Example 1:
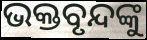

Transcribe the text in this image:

ଭକ୍ତବୃନ୍ଦଙ୍କୁ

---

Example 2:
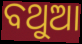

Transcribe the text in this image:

ବଥୁଆ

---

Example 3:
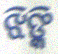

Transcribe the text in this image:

ଝିଙ୍କି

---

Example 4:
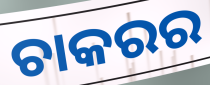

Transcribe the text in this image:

ଚାକରର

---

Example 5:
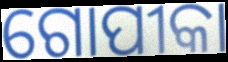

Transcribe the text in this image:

ଗୋପୀକା